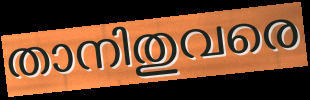
താനിതുവരെ